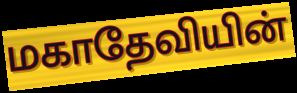
மகாதேவியின்